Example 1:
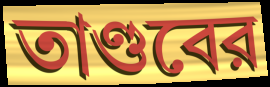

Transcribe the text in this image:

তাণ্ডবের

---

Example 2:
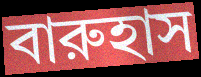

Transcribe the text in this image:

বারুহাস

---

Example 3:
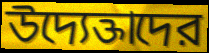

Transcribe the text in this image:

উদ্যেক্তাদের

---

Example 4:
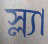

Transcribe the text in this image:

স্ল্যা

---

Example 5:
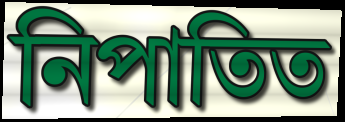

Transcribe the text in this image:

নিপাতিত